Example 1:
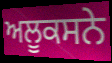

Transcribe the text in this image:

ਅਲੂਕਸਨੇ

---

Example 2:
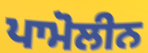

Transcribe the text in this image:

ਪਾਮੋਲੀਨ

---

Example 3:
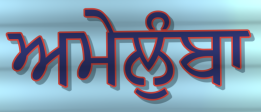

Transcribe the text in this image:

ਅਮੇਲੁੰਬਾ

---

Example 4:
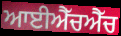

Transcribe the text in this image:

ਆਈਐੱਚਐੱਚ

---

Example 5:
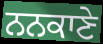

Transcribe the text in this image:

ਨਨਕਾਣੇ